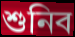
শুনিব